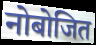
नोबोजित